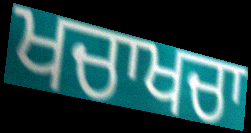
ਖਚਾਖਚਾ